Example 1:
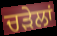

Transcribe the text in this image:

ਚੜੇਲਾਂ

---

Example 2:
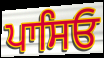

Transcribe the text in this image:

ਪਾਸਿਓ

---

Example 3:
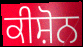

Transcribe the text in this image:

ਕੀਸ਼ੋਨ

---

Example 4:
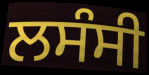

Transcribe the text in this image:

ਲਸੰਸੀ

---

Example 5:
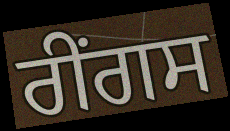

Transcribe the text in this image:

ਰੀਂਗਸ